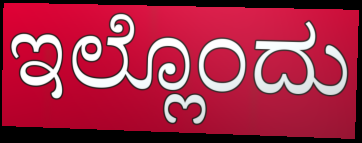
ಇಲ್ಲೊಂದು